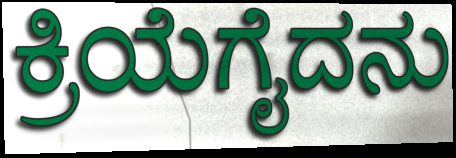
ಕ್ರಿಯೆಗೈದನು